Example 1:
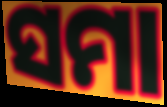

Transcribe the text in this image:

ସମା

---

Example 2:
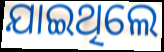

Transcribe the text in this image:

ଯାଇଥିଲେ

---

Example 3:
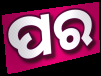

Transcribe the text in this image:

ପର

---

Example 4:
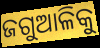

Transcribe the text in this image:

ଜଗୁଆଳିକୁ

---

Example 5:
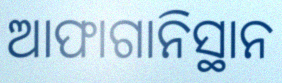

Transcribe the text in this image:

ଆଫାଗାନିସ୍ଥାନ